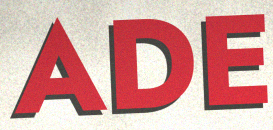
ADE